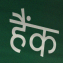
हैंक